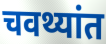
चवथ्यांत